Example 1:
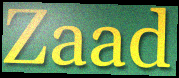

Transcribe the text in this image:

Zaad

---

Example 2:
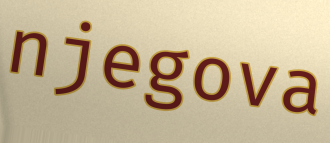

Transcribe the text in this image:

njegova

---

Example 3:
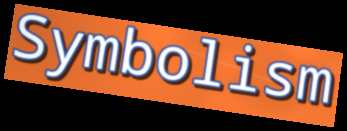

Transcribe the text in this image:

Symbolism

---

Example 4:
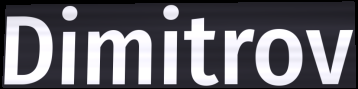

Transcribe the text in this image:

Dimitrov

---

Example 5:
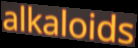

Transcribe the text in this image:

alkaloids